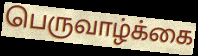
பெருவாழ்க்கை